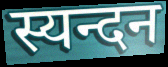
स्यन्दन